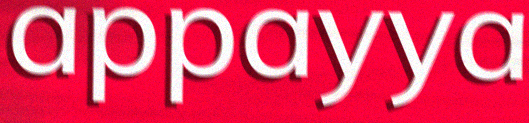
appayya